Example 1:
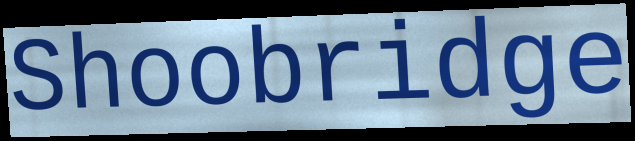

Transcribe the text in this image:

Shoobridge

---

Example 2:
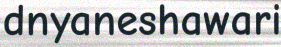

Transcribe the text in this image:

dnyaneshawari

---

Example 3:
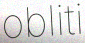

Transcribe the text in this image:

obliti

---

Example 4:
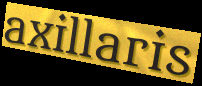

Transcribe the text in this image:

axillaris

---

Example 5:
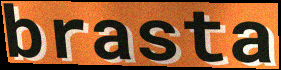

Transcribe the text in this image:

brasta